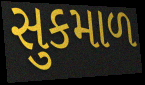
સુકમાળ